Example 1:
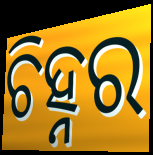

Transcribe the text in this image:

ଚିହ୍ନର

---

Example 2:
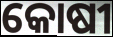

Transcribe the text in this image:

କୋଷୀ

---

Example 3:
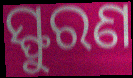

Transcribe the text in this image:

ସ୍ଫୁରଣ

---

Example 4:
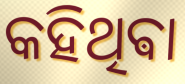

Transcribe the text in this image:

କହିଥିଵା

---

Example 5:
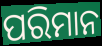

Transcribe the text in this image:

ପରିମାନ